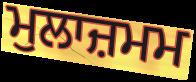
ਮੁਲਾਜ਼ਮਮ